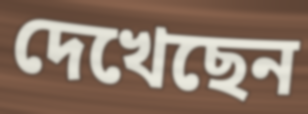
দেখেছেন